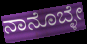
ನಾನೊಬ್ಳೇ